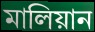
মালিয়ান